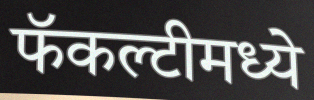
फॅकल्टीमध्ये